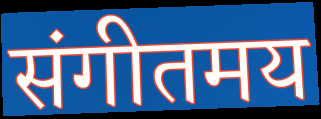
संगीतमय